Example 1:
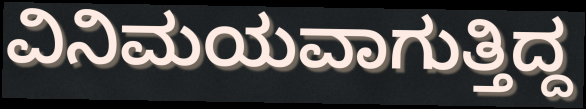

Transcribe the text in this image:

ವಿನಿಮಯವಾಗುತ್ತಿದ್ದ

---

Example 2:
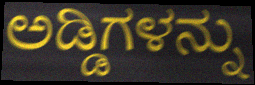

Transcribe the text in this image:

ಅಡ್ಡಿಗಳನ್ನು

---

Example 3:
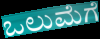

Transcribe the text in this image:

ಒಲುಮೆಗೆ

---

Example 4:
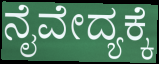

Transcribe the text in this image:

ನೈವೇದ್ಯಕ್ಕೆ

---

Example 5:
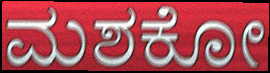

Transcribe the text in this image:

ಮಶಕೋ